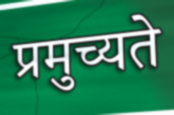
प्रमुच्यते